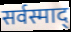
सर्वस्माद्